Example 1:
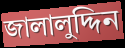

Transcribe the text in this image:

জালালুদ্দিন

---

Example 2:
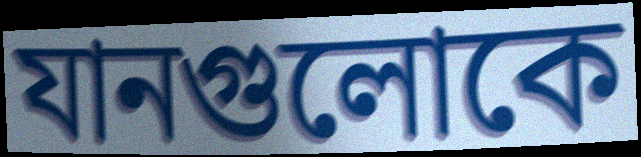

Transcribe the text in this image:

যানগুলোকে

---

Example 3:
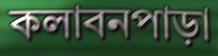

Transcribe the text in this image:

কলাবনপাড়া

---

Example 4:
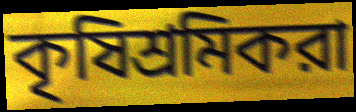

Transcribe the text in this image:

কৃষিশ্রমিকরা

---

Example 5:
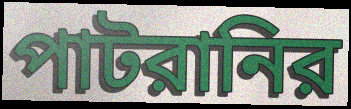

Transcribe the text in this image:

পাটরানির